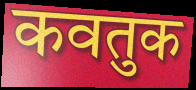
कवतुक